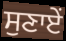
ਸੁਣਾਏਂ